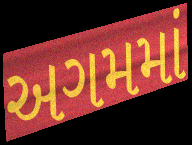
અગમમાં